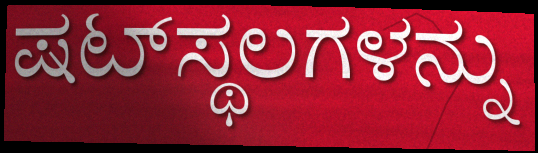
ಷಟ್‌ಸ್ಥಲಗಳನ್ನು